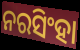
ନରସିଂହା